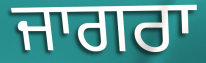
ਜਾਗਰਾ